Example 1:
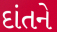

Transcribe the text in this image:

દાંતને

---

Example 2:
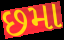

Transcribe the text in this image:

છમા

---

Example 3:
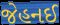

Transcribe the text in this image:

જેહનઈ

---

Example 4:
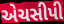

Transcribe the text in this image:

એચસીપી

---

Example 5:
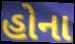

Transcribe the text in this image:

હોના